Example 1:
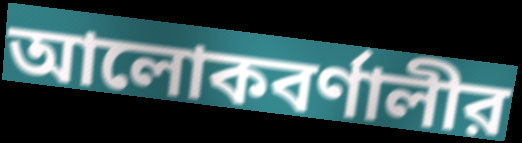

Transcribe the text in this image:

আলোকবর্ণালীর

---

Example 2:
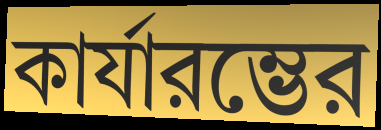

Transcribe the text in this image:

কার্যারম্ভের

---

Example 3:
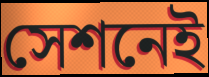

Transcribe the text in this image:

সেশনেই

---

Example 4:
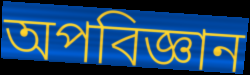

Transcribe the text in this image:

অপবিজ্ঞান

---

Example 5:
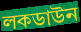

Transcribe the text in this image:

লকডাউন